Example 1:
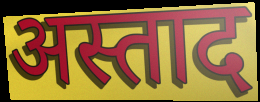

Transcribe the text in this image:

अस्ताद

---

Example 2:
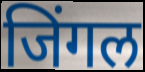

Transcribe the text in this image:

जिंगल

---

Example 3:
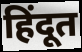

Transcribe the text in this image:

हिंदूत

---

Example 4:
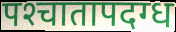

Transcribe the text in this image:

पश्चातापदग्ध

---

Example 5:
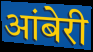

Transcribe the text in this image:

आंबेरी